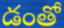
డంతో